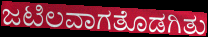
ಜಟಿಲವಾಗತೊಡಗಿತು